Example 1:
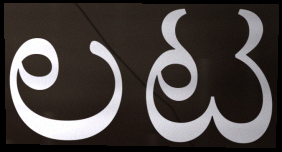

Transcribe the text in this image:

ಲಟ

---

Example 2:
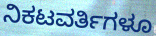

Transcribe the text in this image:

ನಿಕಟವರ್ತಿಗಳೂ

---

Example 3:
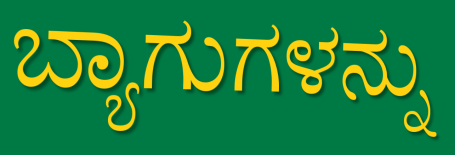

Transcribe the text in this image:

ಬ್ಯಾಗುಗಳನ್ನು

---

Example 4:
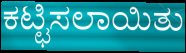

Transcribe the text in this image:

ಕಟ್ಟಿಸಲಾಯಿತು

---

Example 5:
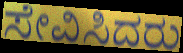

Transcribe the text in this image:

ಸೇವಿಸಿದರು